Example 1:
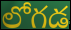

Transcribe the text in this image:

లోగడ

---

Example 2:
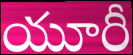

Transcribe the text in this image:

యూరీ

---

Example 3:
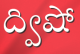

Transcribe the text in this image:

ద్విషో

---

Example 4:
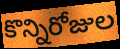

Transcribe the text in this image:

కొన్నిరోజుల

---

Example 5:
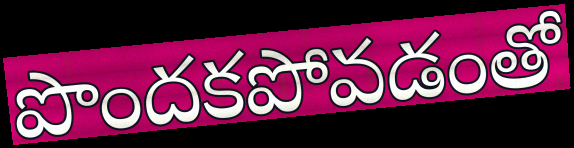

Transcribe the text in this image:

పొందకపోవడంతో